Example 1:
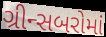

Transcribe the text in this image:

ગ્રીન્સબરોમાં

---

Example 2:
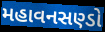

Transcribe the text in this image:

મહાવનસણ્ડો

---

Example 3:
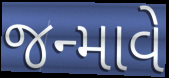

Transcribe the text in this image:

જન્માવે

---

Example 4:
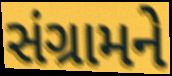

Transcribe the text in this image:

સંગ્રામને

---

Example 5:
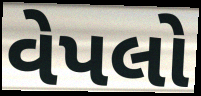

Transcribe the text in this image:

વેપલો